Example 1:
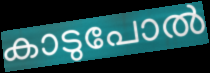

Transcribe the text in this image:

കാടുപോൽ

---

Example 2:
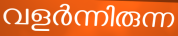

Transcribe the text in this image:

വളർന്നിരുന്ന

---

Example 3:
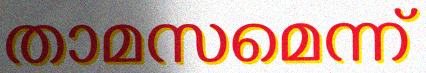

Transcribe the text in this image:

താമസമെന്ന്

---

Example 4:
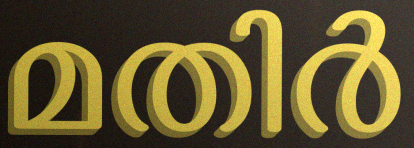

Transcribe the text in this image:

മതിർ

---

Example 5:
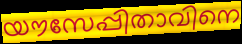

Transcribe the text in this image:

യൗസേപ്പിതാവിനെ